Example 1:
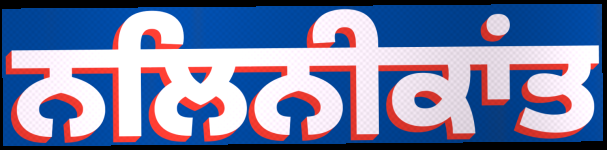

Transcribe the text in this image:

ਨਲਿਨੀਕਾਂਤ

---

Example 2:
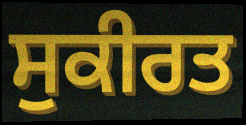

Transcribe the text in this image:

ਸੁਕੀਰਤ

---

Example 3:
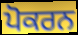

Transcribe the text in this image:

ਪੋਕਰਨ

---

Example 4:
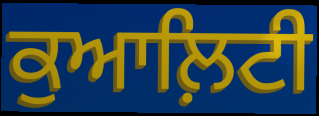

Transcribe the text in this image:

ਕੁਆਲ਼ਿਟੀ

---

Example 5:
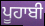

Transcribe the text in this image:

ਪੂਹਾਬੀ